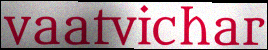
vaatvichar